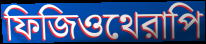
ফিজিওথেরাপি